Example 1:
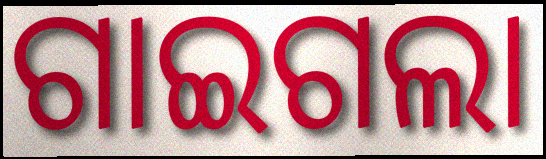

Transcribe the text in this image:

ଗାଇଗଲା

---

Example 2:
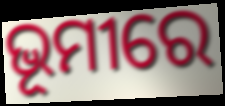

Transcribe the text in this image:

ଭୂମୀରେ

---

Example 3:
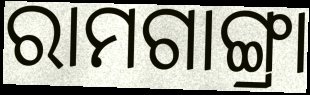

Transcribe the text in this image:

ରାମଗାଙ୍ଗ୍ରା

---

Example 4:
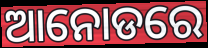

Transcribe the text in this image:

ଆନୋଡରେ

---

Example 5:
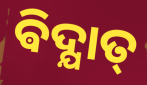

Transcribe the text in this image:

ଵିଦ୍ଯାତ୍